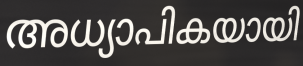
അധ്യാപികയായി